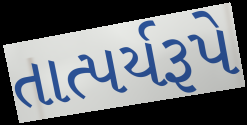
તાત્પર્યરૂપે